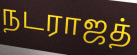
நடராஜத்